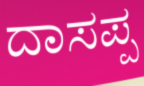
ದಾಸಪ್ಪ